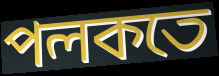
পলকতে